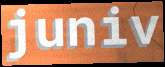
juniv